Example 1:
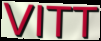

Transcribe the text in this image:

VITT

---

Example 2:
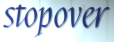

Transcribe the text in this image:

stopover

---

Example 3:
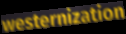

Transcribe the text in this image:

westernization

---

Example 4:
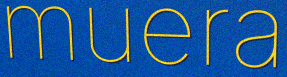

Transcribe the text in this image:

muera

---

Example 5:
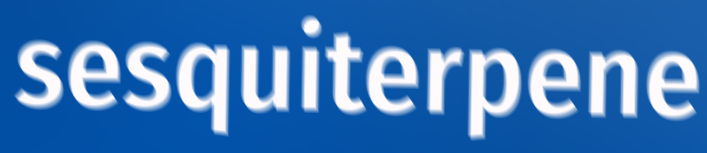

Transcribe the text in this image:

sesquiterpene